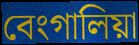
বেংগালিয়া